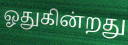
ஓதுகின்றது